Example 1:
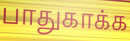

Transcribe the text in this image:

பாதுகாக்க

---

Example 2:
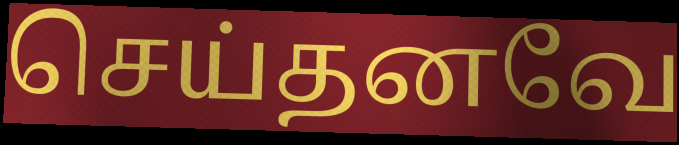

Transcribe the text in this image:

செய்தனவே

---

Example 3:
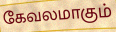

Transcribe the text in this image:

கேவலமாகும்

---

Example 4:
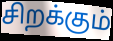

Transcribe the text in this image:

சிறக்கும்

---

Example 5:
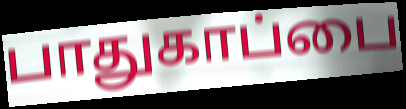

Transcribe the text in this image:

பாதுகாப்பை